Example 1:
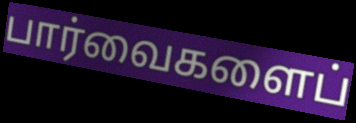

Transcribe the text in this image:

பார்வைகளைப்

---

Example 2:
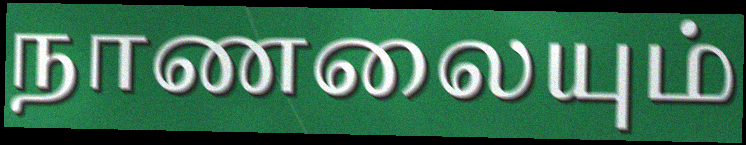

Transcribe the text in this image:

நாணலையும்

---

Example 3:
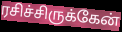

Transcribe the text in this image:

ரசிச்சிருக்கேன்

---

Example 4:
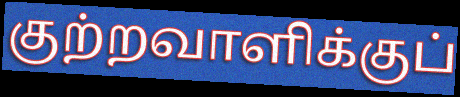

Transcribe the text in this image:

குற்றவாளிக்குப்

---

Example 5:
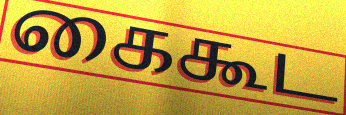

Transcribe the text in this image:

கைகூட